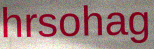
hrsohag